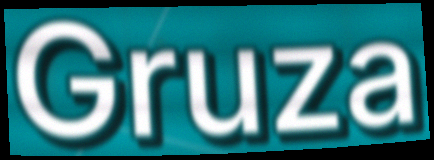
Gruza